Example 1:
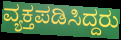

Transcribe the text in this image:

ವ್ಯಕ್ತಪಡಿಸಿದ್ದರು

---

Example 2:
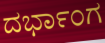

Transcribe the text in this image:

ದರ್ಭಾಂಗ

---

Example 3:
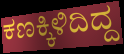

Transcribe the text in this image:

ಕಣಕ್ಕಿಳಿದಿದ್ದ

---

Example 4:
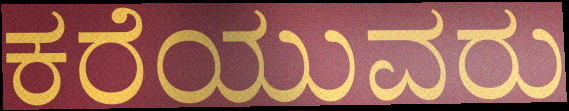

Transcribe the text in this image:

ಕರೆಯುವರು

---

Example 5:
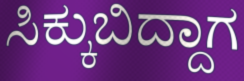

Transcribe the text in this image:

ಸಿಕ್ಕುಬಿದ್ದಾಗ